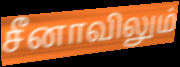
சீனாவிலும்